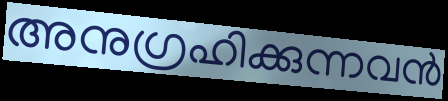
അനുഗ്രഹിക്കുന്നവൻ